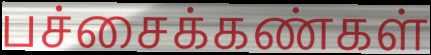
பச்சைக்கண்கள்